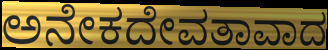
ಅನೇಕದೇವತಾವಾದ